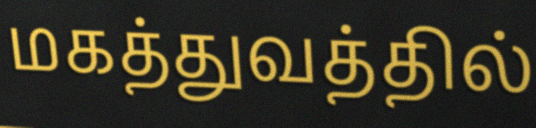
மகத்துவத்தில்